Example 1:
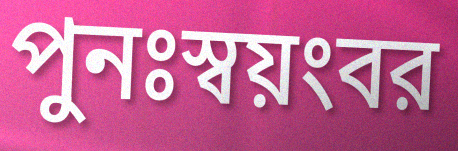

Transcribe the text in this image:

পুনঃস্বয়ংবর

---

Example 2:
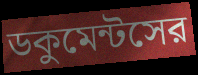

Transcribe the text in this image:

ডকুমেন্টসের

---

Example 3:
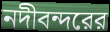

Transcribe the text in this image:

নদীবন্দরের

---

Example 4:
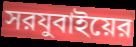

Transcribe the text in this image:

সরযুবাইয়ের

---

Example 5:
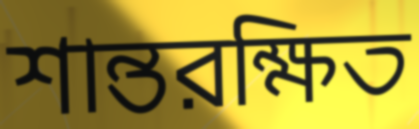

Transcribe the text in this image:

শান্তরক্ষিত